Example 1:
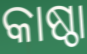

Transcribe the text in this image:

କାଷ୍ଠା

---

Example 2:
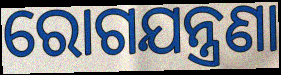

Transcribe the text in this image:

ରୋଗଯନ୍ତ୍ରଣା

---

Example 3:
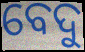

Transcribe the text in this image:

ବେଦୁ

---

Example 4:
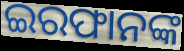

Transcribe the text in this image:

ଇରଫାନଙ୍କ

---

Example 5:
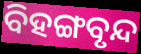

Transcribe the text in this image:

ବିହଙ୍ଗବୃନ୍ଦ